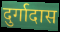
दुर्गादास